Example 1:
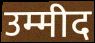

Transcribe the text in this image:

उम्मीद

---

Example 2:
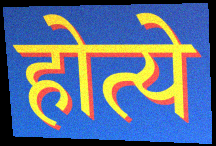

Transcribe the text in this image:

होत्ये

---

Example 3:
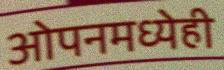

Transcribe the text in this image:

ओपनमध्येही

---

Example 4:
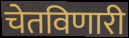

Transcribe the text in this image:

चेतविणारी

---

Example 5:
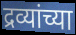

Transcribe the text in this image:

द्रव्यांच्या